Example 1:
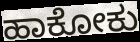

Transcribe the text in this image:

ಹಾಕೋಕು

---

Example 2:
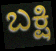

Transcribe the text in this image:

ಬಕ್ಷಿ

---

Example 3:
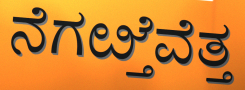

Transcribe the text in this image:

ನೆಗೞ್ತೆವೆತ್ತ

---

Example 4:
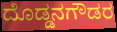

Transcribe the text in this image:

ದೊಡ್ಡನಗೌಡರ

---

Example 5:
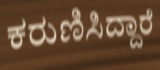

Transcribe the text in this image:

ಕರುಣಿಸಿದ್ದಾರೆ